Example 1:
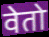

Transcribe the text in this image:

वेतो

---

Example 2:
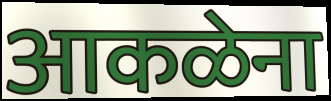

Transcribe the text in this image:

आकळेना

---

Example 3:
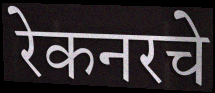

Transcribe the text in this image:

रेकनरचे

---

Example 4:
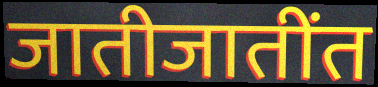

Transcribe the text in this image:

जातीजातींत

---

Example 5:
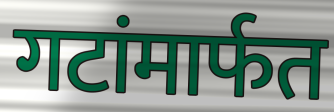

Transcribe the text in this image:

गटांमार्फत